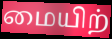
மையிற்